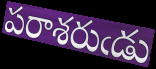
పరాశరుఁడు